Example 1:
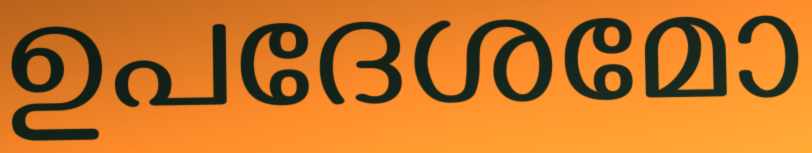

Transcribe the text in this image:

ഉപദേശമോ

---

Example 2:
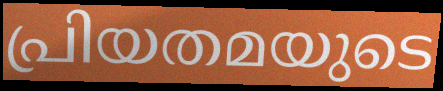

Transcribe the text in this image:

പ്രിയതമയുടെ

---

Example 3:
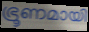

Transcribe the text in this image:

ഭ്രൂണമായി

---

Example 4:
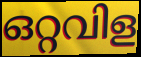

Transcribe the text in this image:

ഒറ്റവിള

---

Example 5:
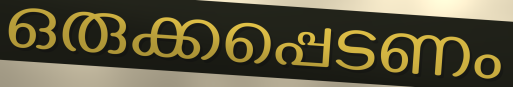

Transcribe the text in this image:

ഒരുക്കപ്പെടണം